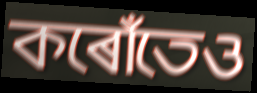
কৰোঁতেও